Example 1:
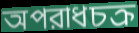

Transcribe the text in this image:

অপরাধচক্র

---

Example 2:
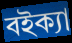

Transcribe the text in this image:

বইক্যা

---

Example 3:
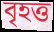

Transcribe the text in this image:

বৃহত্ত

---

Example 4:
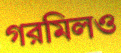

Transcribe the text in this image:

গরমিলও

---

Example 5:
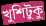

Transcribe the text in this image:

খুশিটুকু